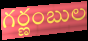
గర్ణంబుల